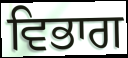
ਵਿਭਾਗ